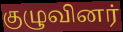
குழுவினர்